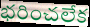
భరించలేక